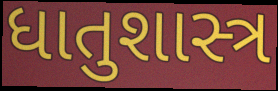
ધાતુશાસ્ત્ર